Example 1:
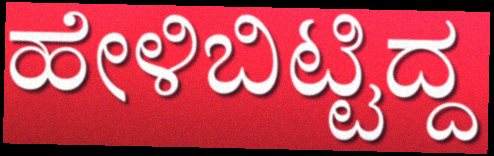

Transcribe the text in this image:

ಹೇಳಿಬಿಟ್ಟಿದ್ದ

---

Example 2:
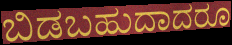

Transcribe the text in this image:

ಬಿಡಬಹುದಾದರೂ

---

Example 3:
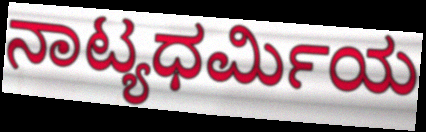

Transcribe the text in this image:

ನಾಟ್ಯಧರ್ಮಿಯ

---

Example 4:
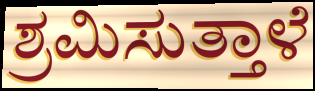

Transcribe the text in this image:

ಶ್ರಮಿಸುತ್ತಾಳೆ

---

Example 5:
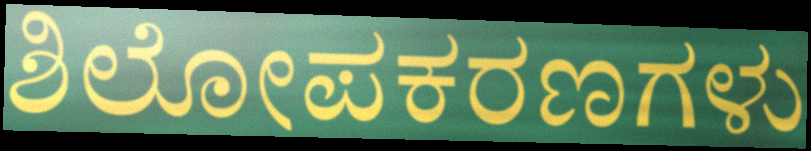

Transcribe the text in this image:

ಶಿಲೋಪಕರಣಗಳು